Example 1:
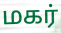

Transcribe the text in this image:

மகர்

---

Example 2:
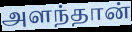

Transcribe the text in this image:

அளந்தான்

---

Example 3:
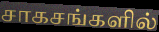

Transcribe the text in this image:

சாகசங்களில்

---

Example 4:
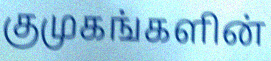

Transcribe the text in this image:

குமுகங்களின்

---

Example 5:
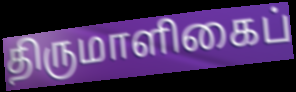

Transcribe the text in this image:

திருமாளிகைப்